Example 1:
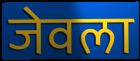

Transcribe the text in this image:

जेवला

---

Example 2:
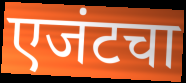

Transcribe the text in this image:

एजंटचा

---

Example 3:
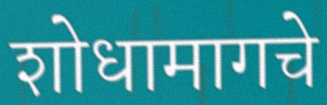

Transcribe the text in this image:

शोधामागचे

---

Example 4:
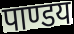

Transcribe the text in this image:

पाण्डय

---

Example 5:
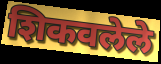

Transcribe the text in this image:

शिकवलेले